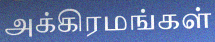
அக்கிரமங்கள்